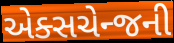
એક્સચેન્જની